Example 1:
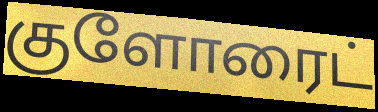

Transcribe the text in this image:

குளோரைட்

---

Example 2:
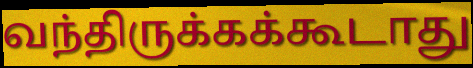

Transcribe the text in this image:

வந்திருக்கக்கூடாது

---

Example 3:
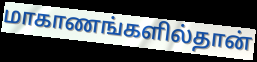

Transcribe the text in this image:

மாகாணங்களில்தான்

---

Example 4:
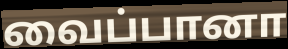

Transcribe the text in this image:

வைப்பானா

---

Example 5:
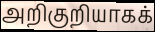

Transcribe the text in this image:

அறிகுறியாகக்